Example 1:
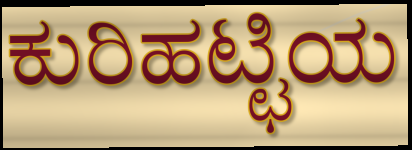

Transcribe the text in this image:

ಕುರಿಹಟ್ಟಿಯ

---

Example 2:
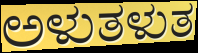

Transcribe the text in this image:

ಅಳುತಳುತ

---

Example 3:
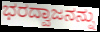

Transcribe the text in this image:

ಭರದ್ವಾಜನನ್ನು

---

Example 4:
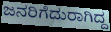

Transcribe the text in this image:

ಜನರಿಗೆದುರಾಗಿದ್ದ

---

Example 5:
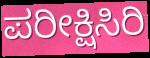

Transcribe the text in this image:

ಪರೀಕ್ಷಿಸಿರಿ